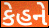
કેહને